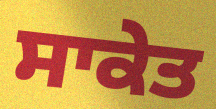
ਸਾਕੇਤ